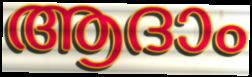
ആദാം